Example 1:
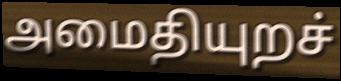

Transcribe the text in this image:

அமைதியுறச்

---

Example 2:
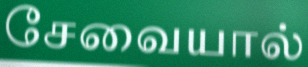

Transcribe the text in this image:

சேவையால்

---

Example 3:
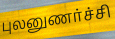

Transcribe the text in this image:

புலனுணர்ச்சி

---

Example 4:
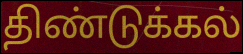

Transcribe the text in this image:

திண்டுக்கல்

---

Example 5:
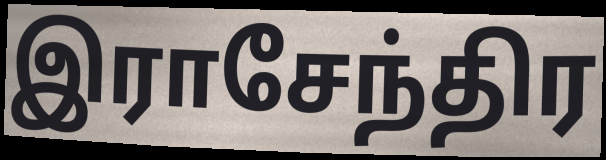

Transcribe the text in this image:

இராசேந்திர